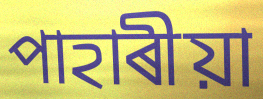
পাহাৰীয়া